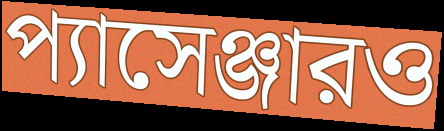
প্যাসেঞ্জারও